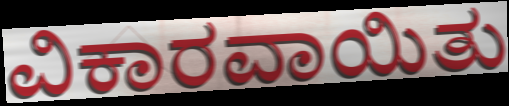
ವಿಕಾರವಾಯಿತು